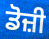
ਡੋਜ਼ੀ